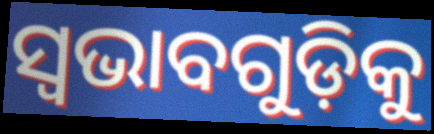
ସ୍ୱଭାବଗୁଡ଼ିକୁ